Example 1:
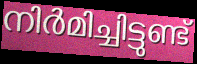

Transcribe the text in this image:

നിർമിച്ചിട്ടുണ്ട്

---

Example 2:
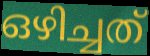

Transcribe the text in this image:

ഒഴിച്ചത്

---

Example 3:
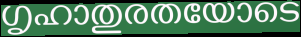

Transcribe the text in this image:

ഗൃഹാതുരതയോടെ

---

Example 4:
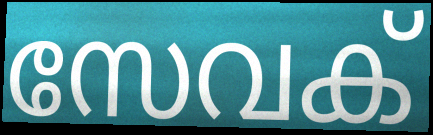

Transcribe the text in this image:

സേവക്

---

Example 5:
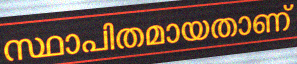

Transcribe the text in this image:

സ്ഥാപിതമായതാണ്